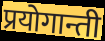
प्रयोगान्ती